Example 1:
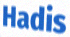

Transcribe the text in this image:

Hadis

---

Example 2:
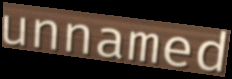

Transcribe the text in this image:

unnamed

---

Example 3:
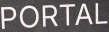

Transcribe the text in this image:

PORTAL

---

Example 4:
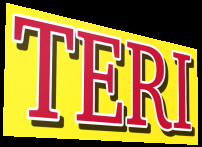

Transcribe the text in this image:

TERI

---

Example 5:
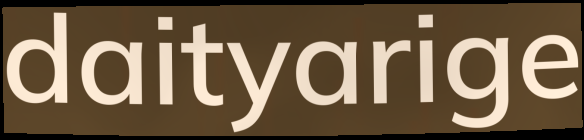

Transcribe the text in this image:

daityarige